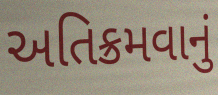
અતિક્રમવાનું